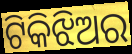
ଟିକିଝିଅର